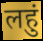
लहुं